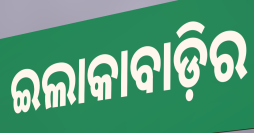
ଇଲାକାବାଡ଼ିର